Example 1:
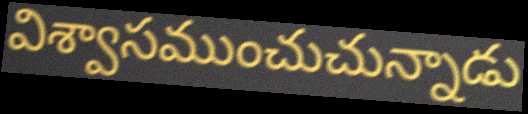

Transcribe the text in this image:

విశ్వాసముంచుచున్నాడు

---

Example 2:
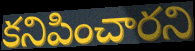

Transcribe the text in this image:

కనిపించారని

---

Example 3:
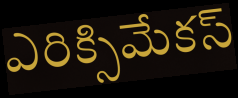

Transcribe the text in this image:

ఎరిక్సిమేకస్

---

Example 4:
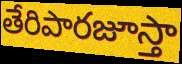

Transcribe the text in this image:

తేరిపారజూస్తా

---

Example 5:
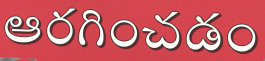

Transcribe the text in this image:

ఆరగించడం